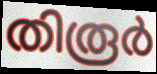
തിരൂർ